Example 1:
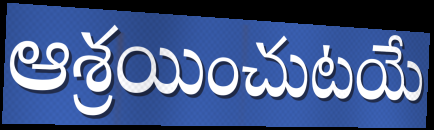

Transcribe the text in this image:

ఆశ్రయించుటయే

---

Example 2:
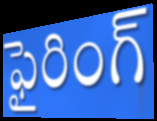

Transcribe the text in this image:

ఫైరింగ్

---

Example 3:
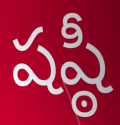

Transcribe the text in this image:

షష్ఠీ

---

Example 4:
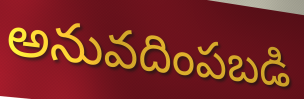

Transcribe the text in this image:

అనువదింపబడి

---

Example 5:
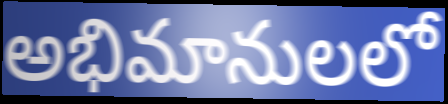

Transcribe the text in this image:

అభిమానులలో